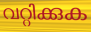
വറ്റിക്കുക